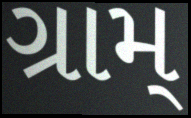
ગ્રામ્